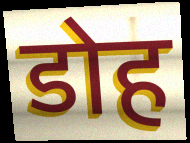
डोह